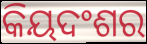
କିୟଦଂଶର